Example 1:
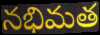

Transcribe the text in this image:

నభిమత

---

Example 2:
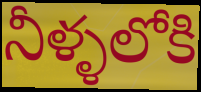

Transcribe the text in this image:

నీళ్ళలోకి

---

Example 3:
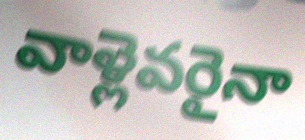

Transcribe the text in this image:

వాళ్లెవరైనా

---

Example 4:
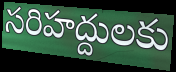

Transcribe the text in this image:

సరిహద్దులకు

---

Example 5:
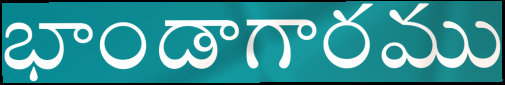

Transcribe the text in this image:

భాండాగారము